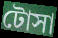
টোসা